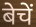
बेचें